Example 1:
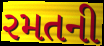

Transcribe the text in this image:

રમતની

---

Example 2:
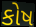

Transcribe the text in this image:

કોષ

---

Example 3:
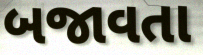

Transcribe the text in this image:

બજાવતા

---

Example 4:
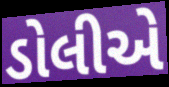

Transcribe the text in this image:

ડોલીએ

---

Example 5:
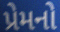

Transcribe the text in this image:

પ્રેમનો